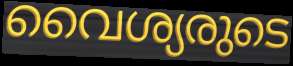
വൈശ്യരുടെ